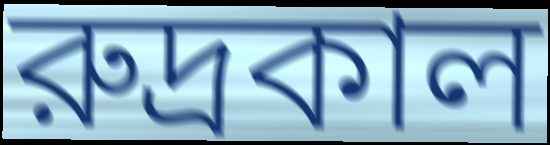
রুদ্রকাল